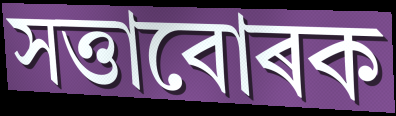
সত্তাবোৰক